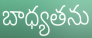
బాధ్యతను